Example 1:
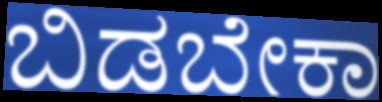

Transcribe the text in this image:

ಬಿಡಬೇಕಾ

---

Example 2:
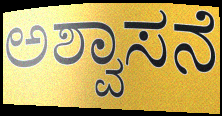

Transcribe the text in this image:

ಅಶ್ವಾಸನೆ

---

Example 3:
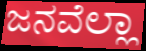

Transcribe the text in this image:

ಜನವೆಲ್ಲಾ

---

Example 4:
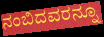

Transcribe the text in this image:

ನಂಬಿದವರನ್ನೂ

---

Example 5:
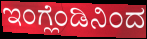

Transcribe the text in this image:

ಇಂಗ್ಲೆಂಡಿನಿಂದ